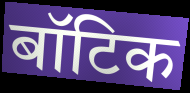
बॉटिक